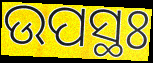
ଉପସ୍ଥଃ